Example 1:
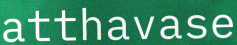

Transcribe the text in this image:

atthavase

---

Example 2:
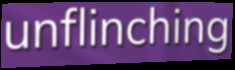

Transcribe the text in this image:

unflinching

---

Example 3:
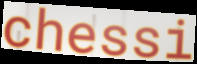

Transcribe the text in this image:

chessi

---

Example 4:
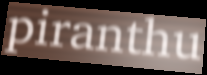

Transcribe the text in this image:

piranthu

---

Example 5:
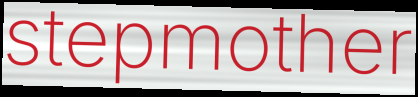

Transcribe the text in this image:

stepmother